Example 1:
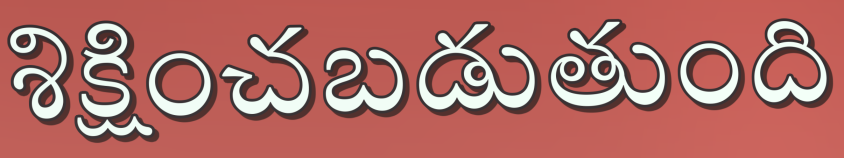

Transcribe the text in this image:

శిక్షించబడుతుంది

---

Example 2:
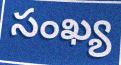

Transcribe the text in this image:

సంఖ్య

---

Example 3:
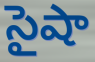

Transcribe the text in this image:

సైషా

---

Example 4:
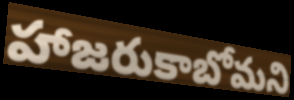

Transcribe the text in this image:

హాజరుకాబోమని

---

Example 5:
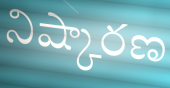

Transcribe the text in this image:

నిష్కారణ